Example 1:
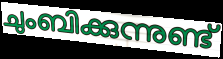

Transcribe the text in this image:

ചുംബിക്കുന്നുണ്ട്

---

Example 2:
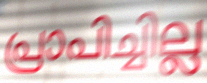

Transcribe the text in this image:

പ്രാപിച്ചില്ല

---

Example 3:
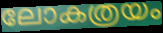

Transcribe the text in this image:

ലോകത്രയം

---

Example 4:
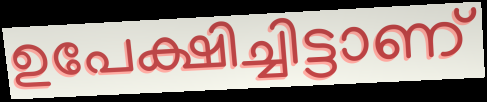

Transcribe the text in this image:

ഉപേക്ഷിച്ചിട്ടാണ്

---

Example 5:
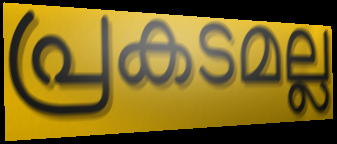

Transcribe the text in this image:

പ്രകടമല്ല